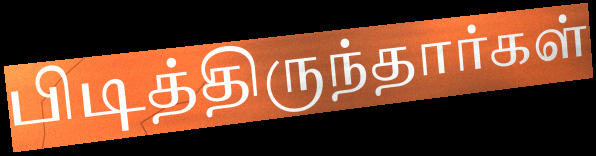
பிடித்திருந்தார்கள்